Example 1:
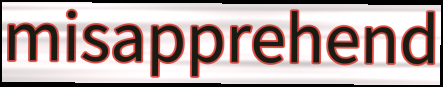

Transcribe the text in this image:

misapprehend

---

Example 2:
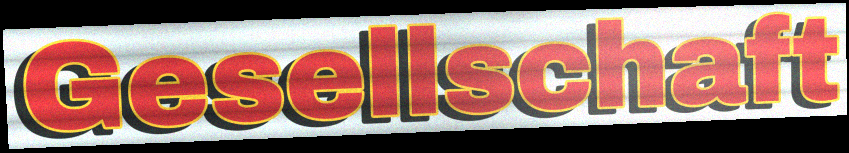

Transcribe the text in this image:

Gesellschaft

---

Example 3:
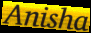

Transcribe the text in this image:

Anisha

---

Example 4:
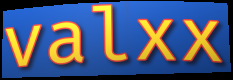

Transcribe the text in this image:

valxx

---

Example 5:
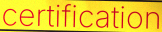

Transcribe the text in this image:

certification